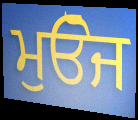
ਮੁਓੋਜ